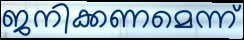
ജനിക്കണമെന്ന്